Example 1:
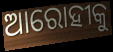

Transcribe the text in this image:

ଆରୋହୀକୁ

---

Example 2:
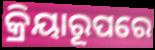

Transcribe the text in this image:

କ୍ରିୟାରୂପରେ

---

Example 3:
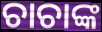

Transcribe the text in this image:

ଚାଚାଙ୍କ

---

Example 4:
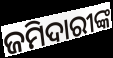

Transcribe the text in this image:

ଜମିଦାରୀଙ୍କ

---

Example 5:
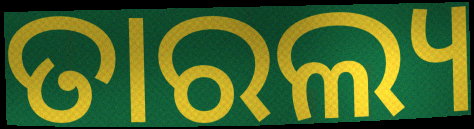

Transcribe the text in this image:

ତାରଲ୍ୟ